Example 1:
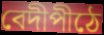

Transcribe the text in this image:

বেদীপীঠে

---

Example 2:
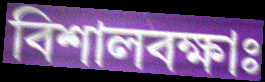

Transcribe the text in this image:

বিশালবক্ষাঃ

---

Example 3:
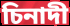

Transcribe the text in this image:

চিনাদী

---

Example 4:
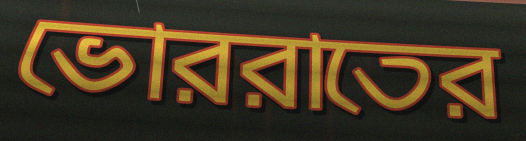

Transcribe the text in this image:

ভোররাতের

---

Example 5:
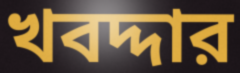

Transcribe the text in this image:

খবদ্দার